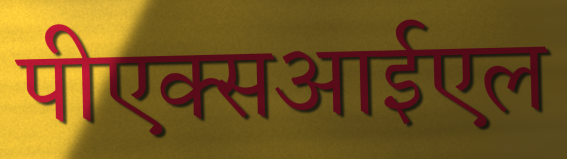
पीएक्सआईएल